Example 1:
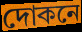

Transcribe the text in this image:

দোকনে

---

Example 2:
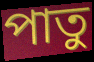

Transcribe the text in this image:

পাতু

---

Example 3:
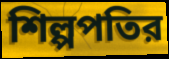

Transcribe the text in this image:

শিল্পপতির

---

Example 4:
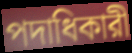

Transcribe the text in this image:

পদাধিকারী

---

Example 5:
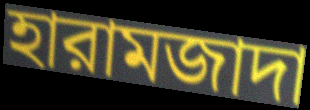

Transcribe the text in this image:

হারামজাদা